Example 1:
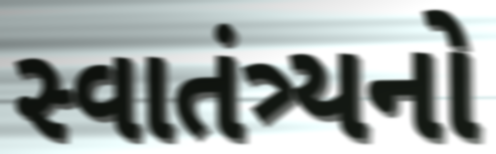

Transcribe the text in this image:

સ્વાતંત્ર્યનો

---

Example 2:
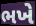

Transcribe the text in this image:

ભખે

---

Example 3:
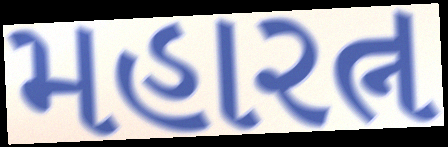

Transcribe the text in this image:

મહારત્ન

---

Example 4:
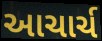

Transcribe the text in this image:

આચાર્ચ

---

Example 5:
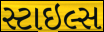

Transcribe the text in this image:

સ્ટાઇલ્સ